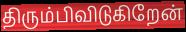
திரும்பிவிடுகிறேன்